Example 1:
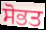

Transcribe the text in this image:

ਸੋਭਤ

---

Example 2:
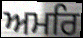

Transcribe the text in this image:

ਅਮਰਿ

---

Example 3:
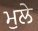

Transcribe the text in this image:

ਮੁਲੇ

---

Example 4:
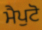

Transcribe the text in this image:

ਮੈਪੁਟੋ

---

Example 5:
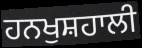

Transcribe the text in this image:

ਹਨਖੁਸ਼ਹਾਲੀ